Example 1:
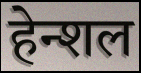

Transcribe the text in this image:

हेन्शल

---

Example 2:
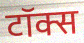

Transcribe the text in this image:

टॉक्स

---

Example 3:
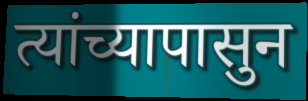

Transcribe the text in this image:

त्यांच्यापासुन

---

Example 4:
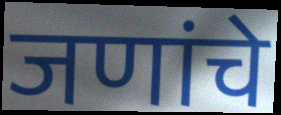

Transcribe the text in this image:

जणांचे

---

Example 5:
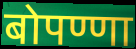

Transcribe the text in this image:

बोपण्णा